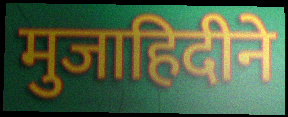
मुजाहिदीने